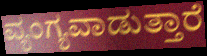
ವ್ಯಂಗ್ಯವಾಡುತ್ತಾರೆ